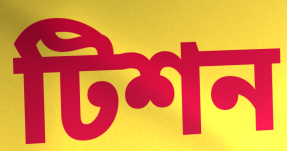
টিশন